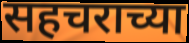
सहचराच्या